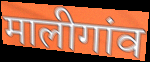
मालीगांव